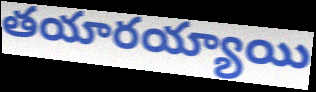
తయారయ్యాయి